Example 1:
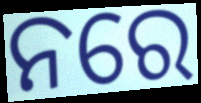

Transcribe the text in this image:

ନରେ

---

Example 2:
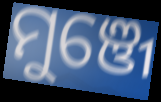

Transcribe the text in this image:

ମୁଞ୍ଜେ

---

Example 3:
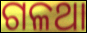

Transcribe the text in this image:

ଗଳଥା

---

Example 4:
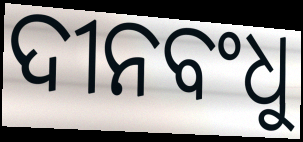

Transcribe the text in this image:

ଦୀନବଂଧୁ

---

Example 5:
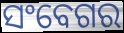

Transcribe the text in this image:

ସଂବେଗର